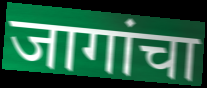
जागांचा